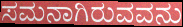
ಸಮನಾಗಿರುವವನು